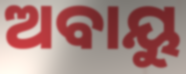
ଅବାୟୁ